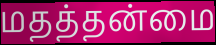
மதத்தன்மை